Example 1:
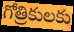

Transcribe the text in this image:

గోత్రికులకు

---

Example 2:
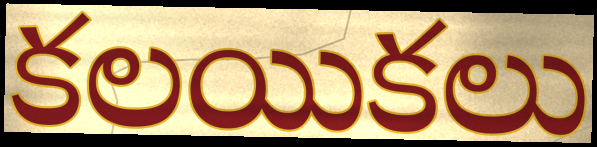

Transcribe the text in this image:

కలయికలు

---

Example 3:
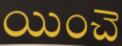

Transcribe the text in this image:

యించె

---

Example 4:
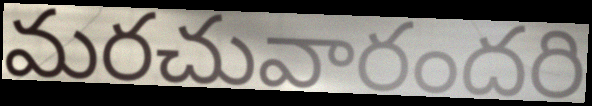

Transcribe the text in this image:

మరచువారందరి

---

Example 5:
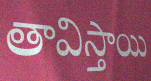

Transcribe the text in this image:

తావిస్తాయి